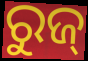
ରୁଜ୍